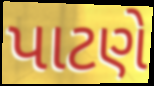
પાટણે